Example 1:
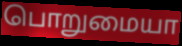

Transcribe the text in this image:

பொறுமையா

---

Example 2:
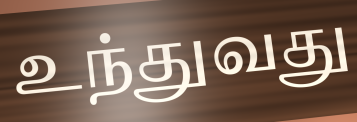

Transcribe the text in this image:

உந்துவது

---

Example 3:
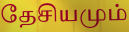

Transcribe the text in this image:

தேசியமும்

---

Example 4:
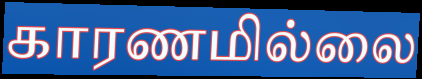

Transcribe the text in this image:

காரணமில்லை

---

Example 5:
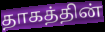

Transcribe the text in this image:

தாகத்தின்